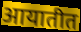
आयातीत